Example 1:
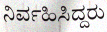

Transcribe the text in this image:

ನಿರ್ವಹಿಸಿದ್ದರು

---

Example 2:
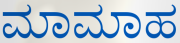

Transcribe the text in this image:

ಮಾಮಾಹ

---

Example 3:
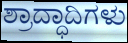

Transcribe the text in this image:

ಶ್ರಾದ್ಧಾದಿಗಳು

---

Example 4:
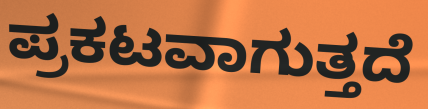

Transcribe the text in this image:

ಪ್ರಕಟವಾಗುತ್ತದೆ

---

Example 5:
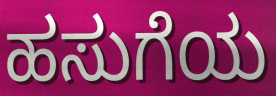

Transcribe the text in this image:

ಹಸುಗೆಯ